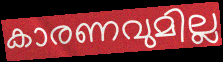
കാരണവുമില്ല